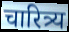
चारित्र्य